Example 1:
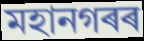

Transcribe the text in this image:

মহানগৰৰ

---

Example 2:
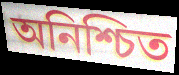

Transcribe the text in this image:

অনিশ্চিত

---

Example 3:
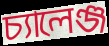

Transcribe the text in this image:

চ্যালেঞ্জ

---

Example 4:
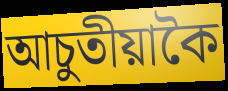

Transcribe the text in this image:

আচুতীয়াকৈ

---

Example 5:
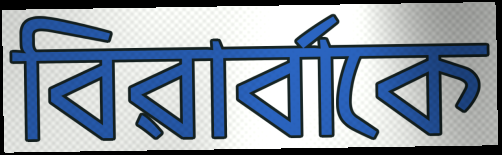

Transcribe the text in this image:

বিৱাৰ্বাকে